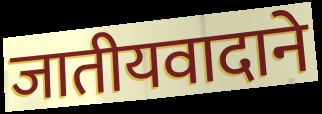
जातीयवादाने